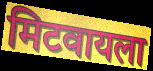
मिटवायला